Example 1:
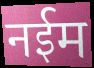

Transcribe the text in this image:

नईम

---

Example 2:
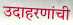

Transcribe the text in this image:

उदाहरणांची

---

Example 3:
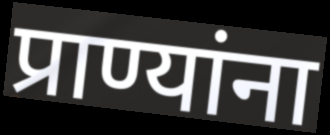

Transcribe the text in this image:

प्राण्यांना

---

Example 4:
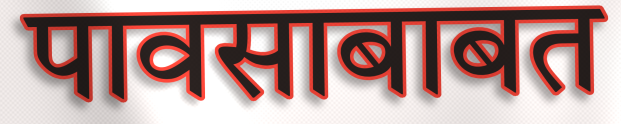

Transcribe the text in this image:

पावसाबाबत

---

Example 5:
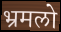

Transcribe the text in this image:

भ्रमलो